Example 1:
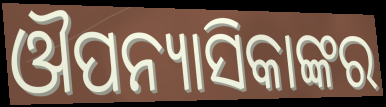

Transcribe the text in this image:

ଔପନ୍ୟାସିକାଙ୍କର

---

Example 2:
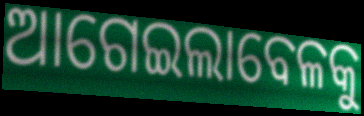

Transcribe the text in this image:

ଆଗେଇଲାବେଳକୁ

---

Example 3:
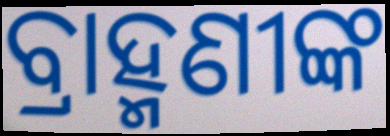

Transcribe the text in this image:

ବ୍ରାହ୍ମଣୀଙ୍କ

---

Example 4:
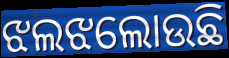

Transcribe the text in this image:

ଝଲଝଲୋଉଛି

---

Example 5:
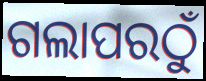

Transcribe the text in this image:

ଗଲାପରଠୁଁ